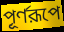
পূর্ণরূপে